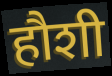
हौशी